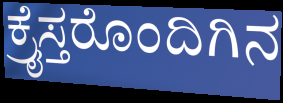
ಕ್ರೈಸ್ತರೊಂದಿಗಿನ